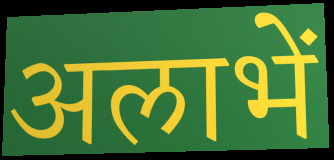
अलाभें